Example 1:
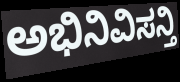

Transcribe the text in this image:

ಅಭಿನಿವಿಸನ್ತಿ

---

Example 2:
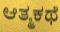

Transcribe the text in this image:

ಆತ್ಮಕಥೆ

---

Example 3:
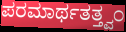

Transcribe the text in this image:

ಪರಮಾರ್ಥತತ್ತ್ವಂ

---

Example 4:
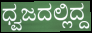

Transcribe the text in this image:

ಧ್ವಜದಲ್ಲಿದ್ದ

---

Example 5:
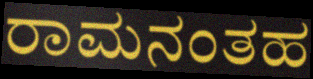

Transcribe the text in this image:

ರಾಮನಂತಹ